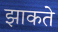
झाकते